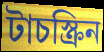
টাচস্ক্রিন